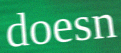
doesn